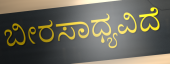
ಬೀರಸಾಧ್ಯವಿದೆ